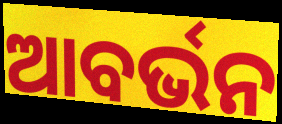
ଆବର୍ଭନ